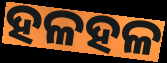
ହଳହଳ